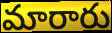
మారారు